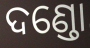
ଦଣ୍ଡୋ